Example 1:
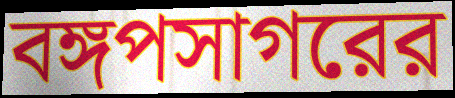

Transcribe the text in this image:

বঙ্গপসাগরের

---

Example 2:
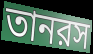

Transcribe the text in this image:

তানরস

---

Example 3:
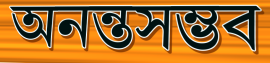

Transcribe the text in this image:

অনন্তসম্ভব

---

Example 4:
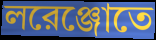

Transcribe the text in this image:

লরেঞ্জোতে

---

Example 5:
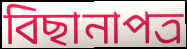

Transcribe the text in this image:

বিছানাপত্র